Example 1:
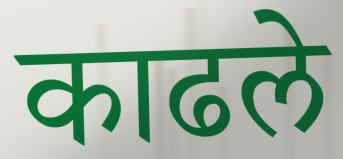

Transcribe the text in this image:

काढले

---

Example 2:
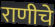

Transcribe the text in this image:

राणीचे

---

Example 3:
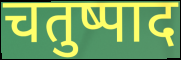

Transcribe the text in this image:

चतुष्पाद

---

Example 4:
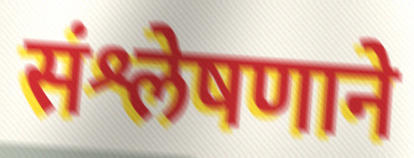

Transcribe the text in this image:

संश्लेषणाने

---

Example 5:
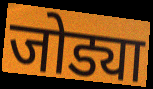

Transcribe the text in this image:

जोड्या